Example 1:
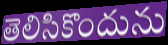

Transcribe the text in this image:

తెలిసికొందును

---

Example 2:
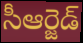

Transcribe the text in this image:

సీఆర్జెడ్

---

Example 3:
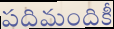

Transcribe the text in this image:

పదిమందికీ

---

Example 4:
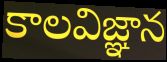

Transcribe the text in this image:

కాలవిజ్ఞాన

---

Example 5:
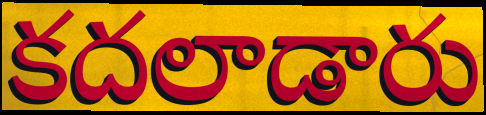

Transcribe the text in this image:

కదలాడారు